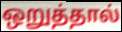
ஒறுத்தால்